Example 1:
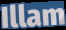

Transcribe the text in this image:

Illam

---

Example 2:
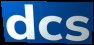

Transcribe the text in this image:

dcs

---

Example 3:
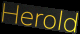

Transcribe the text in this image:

Herold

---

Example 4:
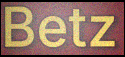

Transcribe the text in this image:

Betz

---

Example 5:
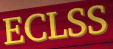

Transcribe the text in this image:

ECLSS